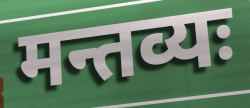
मन्तव्यः